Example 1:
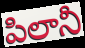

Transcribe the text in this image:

పిలానీ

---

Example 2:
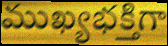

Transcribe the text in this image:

ముఖ్యభక్తిగా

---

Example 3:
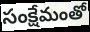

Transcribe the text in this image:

సంక్షేమంతో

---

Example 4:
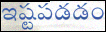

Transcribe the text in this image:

ఇష్టపడడం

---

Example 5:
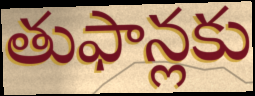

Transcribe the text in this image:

తుఫాన్లకు